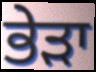
ਭੇੜਾ